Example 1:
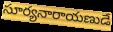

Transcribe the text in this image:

సూర్యనారాయణుడే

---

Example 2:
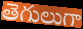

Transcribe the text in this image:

తెగులుగా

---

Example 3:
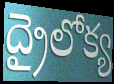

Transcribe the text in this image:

ద్రైలోక్య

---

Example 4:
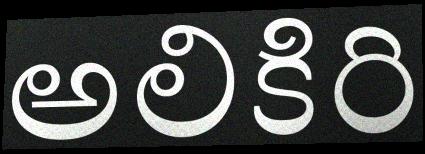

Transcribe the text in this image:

అలికిరి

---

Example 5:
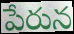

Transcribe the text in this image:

పేరున